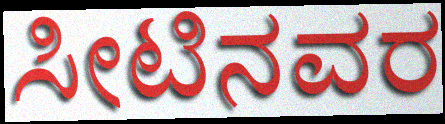
ಸೀಟಿನವರ